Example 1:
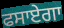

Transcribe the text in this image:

ਫਸਾਏਗਾ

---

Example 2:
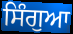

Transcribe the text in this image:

ਸਿੰਗੁਆ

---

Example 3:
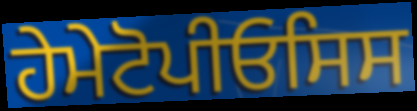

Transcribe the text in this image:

ਹੇਮੇਟੋਪੀਓਸਿਸ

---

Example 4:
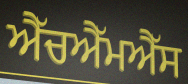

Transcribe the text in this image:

ਐੱਚਐੱਮਐੱਸ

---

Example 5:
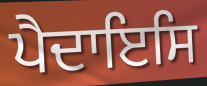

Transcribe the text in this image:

ਪੈਦਾਇਸਿ